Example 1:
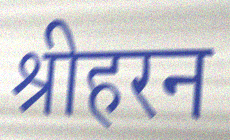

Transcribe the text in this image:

श्रीहरन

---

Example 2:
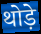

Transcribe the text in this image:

थोड़े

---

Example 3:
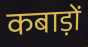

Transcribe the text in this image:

कबाड़ों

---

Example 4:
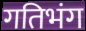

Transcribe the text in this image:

गतिभंग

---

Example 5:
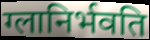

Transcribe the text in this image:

ग्लानिर्भवति